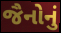
જૈનોનું